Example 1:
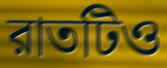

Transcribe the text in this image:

রাতটিও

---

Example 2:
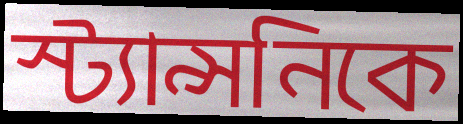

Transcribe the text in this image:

স্ট্যান্সনিকে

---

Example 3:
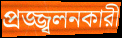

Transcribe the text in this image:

প্রজ্জ্বলনকারী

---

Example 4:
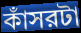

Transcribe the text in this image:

কাঁসরটা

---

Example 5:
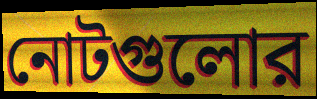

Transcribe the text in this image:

নোটগুলোর